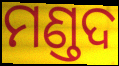
ମଣ୍ଡଦ